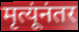
मृत्यूंनंतर